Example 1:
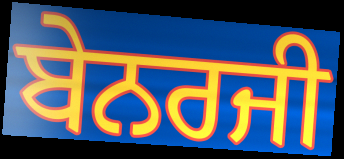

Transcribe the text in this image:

ਬੇਨਰਜੀ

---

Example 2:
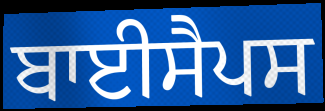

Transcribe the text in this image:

ਬਾਈਸੈਪਸ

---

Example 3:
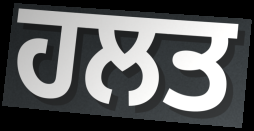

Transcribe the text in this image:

ਹਲਤ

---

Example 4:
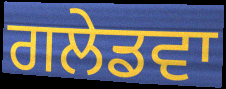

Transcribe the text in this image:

ਗਲੇਡਵਾ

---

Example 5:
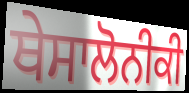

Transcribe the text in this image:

ਥੇਸਾਲੋਨੀਕੀ